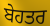
ਬੇਹਤਰ